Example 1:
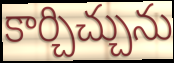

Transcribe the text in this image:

కార్చిచ్చును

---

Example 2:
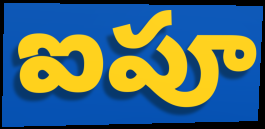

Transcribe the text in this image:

ఐపూ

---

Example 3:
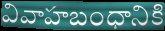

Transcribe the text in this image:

వివాహబంధానికి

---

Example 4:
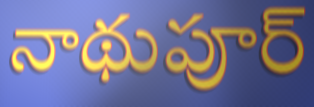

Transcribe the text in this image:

నాథుపూర్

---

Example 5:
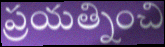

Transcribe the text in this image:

ప్రయత్నించి